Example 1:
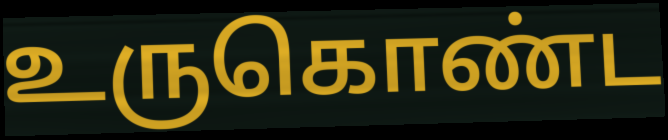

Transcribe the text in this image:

உருகொண்ட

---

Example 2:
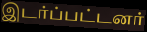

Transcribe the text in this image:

இடர்ப்பட்டனர்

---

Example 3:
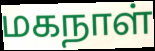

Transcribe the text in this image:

மகநாள்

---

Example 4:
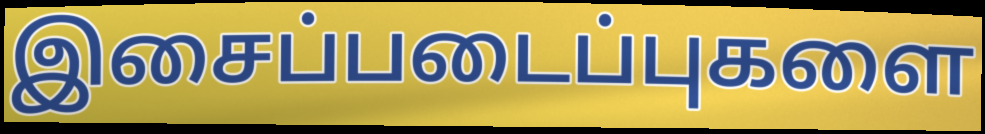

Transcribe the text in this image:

இசைப்படைப்புகளை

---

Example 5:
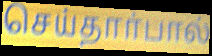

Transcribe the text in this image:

செய்தார்பால்